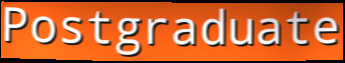
Postgraduate